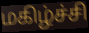
மகிழ்ச்சி